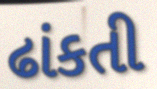
ઢાંકતી